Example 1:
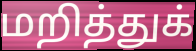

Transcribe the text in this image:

மறித்துக்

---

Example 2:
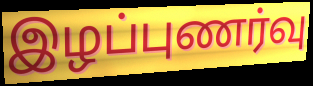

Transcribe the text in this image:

இழப்புணர்வு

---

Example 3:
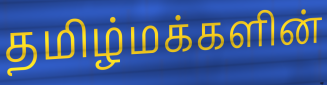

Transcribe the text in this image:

தமிழ்மக்களின்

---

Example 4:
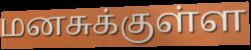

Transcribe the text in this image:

மனசுக்குள்ள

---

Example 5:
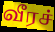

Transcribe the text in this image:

வீரச்